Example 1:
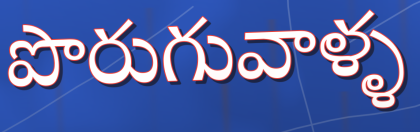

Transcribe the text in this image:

పొరుగువాళ్ళ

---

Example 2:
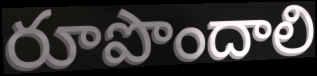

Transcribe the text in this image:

రూపొందాలి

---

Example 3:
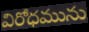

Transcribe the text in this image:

విరోధమును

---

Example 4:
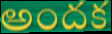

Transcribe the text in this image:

అందక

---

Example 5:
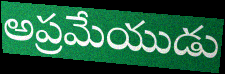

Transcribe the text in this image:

అప్రమేయుడు